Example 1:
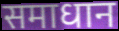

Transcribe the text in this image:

समाधान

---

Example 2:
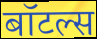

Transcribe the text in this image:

बॉटल्स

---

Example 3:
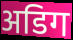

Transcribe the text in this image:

अडिग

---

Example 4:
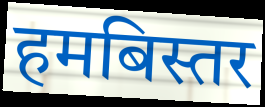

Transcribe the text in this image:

हमबिस्तर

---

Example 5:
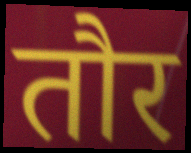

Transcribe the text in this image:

तौर